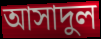
আসাদুল